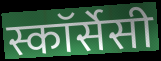
स्कॉर्सेसी